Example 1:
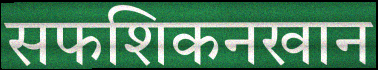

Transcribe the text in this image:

सफशिकनखान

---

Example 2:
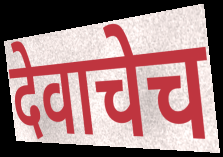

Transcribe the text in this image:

देवाचेच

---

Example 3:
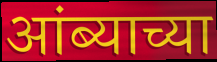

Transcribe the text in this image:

आंब्याच्या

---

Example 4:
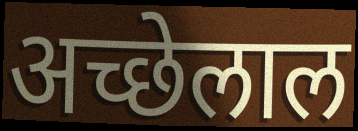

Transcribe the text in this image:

अच्छेलाल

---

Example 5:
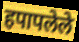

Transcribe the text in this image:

हपापलेले